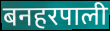
बनहरपाली